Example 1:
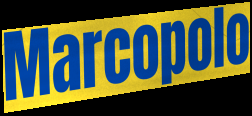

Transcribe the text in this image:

Marcopolo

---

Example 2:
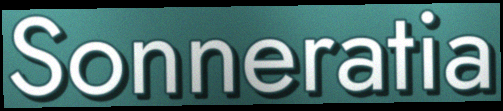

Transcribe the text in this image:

Sonneratia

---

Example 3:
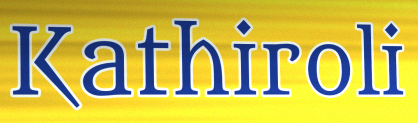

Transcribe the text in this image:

Kathiroli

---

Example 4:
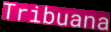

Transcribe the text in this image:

Tribuana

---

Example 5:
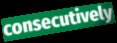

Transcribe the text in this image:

consecutively